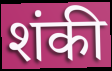
शंकी